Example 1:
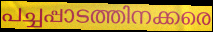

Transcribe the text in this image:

പച്ചപ്പാടത്തിനക്കരെ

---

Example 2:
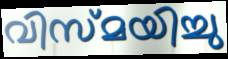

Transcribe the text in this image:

വിസ്മയിച്ചു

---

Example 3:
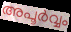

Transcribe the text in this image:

അപൂർവ്വം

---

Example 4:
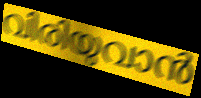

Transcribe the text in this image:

വിരിയുവാൻ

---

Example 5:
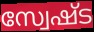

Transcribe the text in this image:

സ്വേഷ്ട